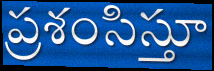
ప్రశంసిస్తూ